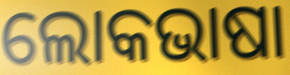
ଲୋକଭାଷା